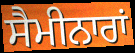
ਸੈਮੀਨਾਰਾਂ